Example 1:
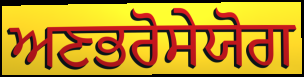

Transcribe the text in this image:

ਅਣਭਰੋਸੇਯੋਗ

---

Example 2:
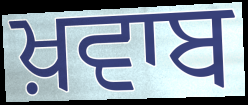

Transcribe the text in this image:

ਖ਼ਵਾਬ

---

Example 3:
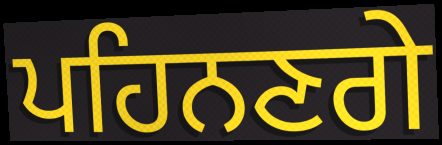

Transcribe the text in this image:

ਪਹਿਨਣਗੇ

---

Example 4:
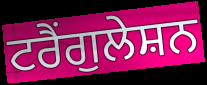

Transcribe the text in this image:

ਟਰੈਂਗੁਲੇਸ਼ਨ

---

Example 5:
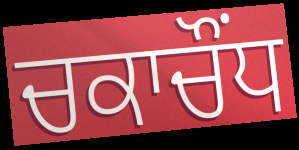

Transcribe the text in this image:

ਚਕਾਚੌਂਧ